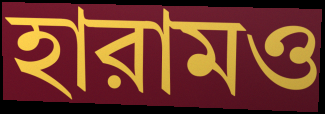
হারামও